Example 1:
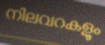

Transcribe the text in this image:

നിലവറകളും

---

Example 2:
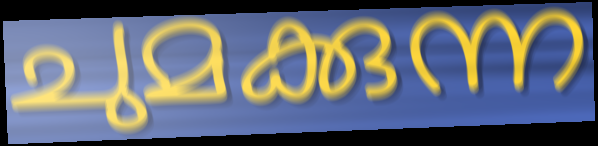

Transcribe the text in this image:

ചുമക്കുന്ന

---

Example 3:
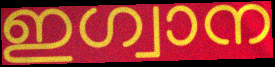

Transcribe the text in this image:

ഇഗ്വാന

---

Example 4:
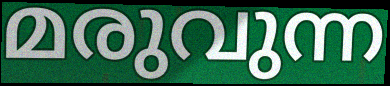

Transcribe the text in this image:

മരുവുന്ന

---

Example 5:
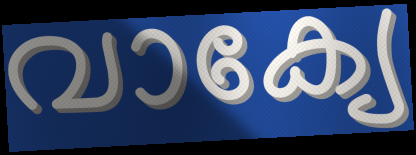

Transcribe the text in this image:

വാക്യേ